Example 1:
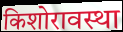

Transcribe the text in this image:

किशोरावस्था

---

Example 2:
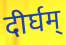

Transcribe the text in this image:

दीर्घम्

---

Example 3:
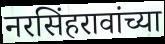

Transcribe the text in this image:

नरसिंहरावांच्या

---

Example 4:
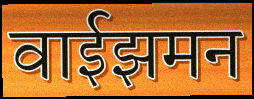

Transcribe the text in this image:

वाईझमन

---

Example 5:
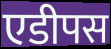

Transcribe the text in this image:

एडीपस